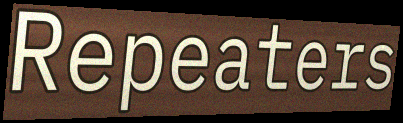
Repeaters